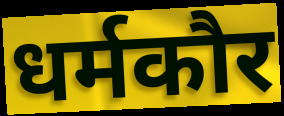
धर्मकौर